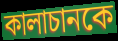
কালাচানকে